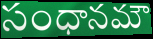
సంధానమౌ